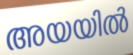
അയയിൽ